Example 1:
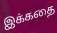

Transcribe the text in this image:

இக்கதை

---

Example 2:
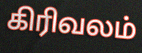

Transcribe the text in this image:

கிரிவலம்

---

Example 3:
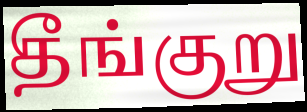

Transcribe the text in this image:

தீங்குறு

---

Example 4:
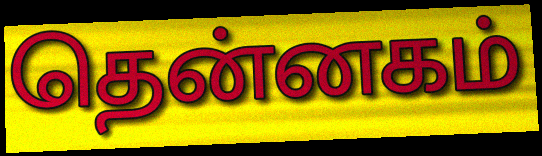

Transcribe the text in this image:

தென்னகம்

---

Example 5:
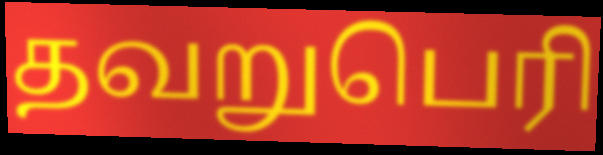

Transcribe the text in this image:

தவறுபெரி